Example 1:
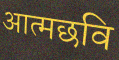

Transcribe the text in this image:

आत्मछवि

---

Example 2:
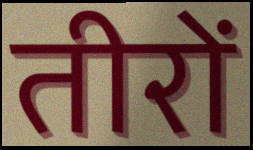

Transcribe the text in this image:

तीरों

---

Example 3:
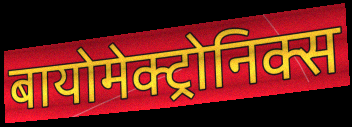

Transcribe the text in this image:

बायोमेक्ट्रोनिक्स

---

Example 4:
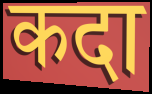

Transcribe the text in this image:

कदा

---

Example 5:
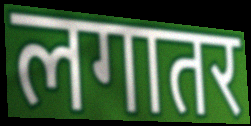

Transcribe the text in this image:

लगातर